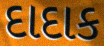
દાદાક